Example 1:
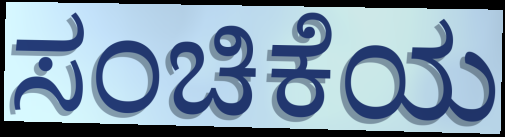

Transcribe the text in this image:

ಸಂಚಿಕೆಯ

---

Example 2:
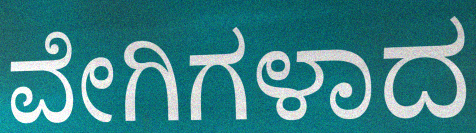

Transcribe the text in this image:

ವೇಗಿಗಳಾದ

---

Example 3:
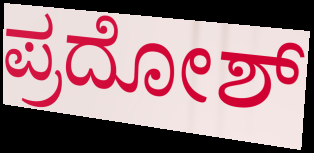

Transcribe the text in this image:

ಪ್ರದೋಶ್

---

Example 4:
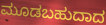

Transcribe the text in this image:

ಮೂಡಬಹುದಾದ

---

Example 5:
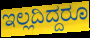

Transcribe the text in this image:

ಇಲ್ಲದಿದ್ದರೂ